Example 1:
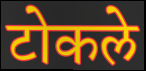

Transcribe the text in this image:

टोकले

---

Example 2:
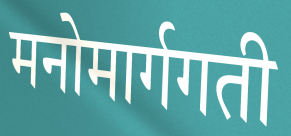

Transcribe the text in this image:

मनोमार्गगती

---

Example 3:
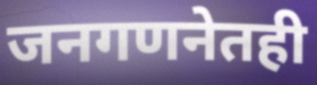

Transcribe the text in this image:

जनगणनेतही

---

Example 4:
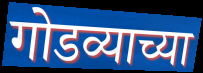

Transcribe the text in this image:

गोडव्याच्या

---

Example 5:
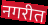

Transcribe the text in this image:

नगरीत